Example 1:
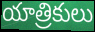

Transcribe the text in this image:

యాత్రికులు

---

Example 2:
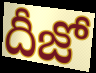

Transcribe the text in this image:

దీజో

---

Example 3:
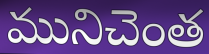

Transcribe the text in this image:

మునిచెంత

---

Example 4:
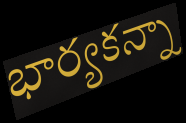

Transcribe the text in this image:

భార్యకన్నా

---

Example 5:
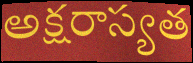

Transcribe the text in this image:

అక్షరాస్యత